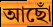
আছোঁ